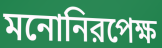
মনোনিরপেক্ষ